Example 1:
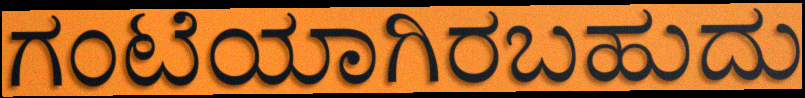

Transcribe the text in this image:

ಗಂಟೆಯಾಗಿರಬಹುದು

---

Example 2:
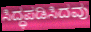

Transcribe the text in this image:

ಸಿದ್ಧಪಡಿಸಿದವು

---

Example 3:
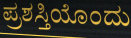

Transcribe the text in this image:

ಪ್ರಶಸ್ತಿಯೊಂದು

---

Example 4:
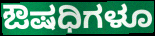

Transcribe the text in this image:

ಔಷಧಿಗಳೂ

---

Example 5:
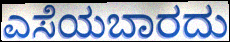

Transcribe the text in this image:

ಎಸೆಯಬಾರದು